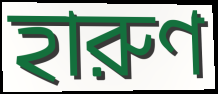
হারুণ